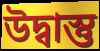
উদ্বাস্তু